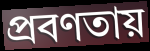
প্রবণতায়